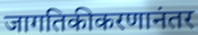
जागतिकीकरणानंतर